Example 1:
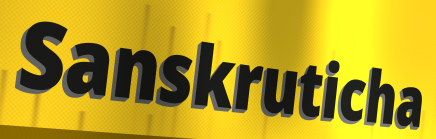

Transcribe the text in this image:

Sanskruticha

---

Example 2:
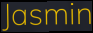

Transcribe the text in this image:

Jasmin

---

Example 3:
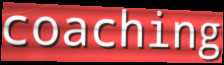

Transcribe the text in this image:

coaching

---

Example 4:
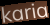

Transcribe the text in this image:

karia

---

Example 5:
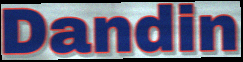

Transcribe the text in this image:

Dandin